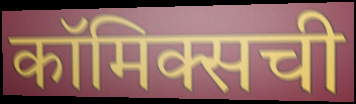
कॉमिक्सची